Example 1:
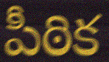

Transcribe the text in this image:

పీఠిక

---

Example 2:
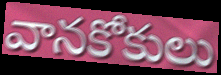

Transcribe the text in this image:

వానకోకులు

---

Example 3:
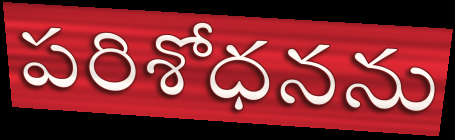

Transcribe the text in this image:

పరిశోధనను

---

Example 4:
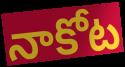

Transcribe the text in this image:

నాకోట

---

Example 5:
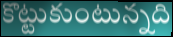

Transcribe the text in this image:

కొట్టుకుంటున్నది